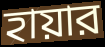
হায়ার